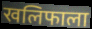
खलिफाला